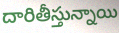
దారితీస్తున్నాయి